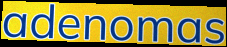
adenomas